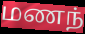
மணந்